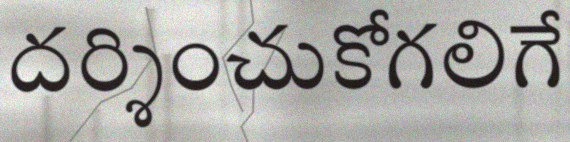
దర్శించుకోగలిగే